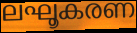
ലഘൂകരണ